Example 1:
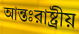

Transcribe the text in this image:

আন্তঃরাষ্ট্রীয়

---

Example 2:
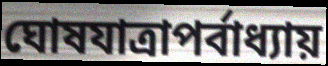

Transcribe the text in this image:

ঘোষযাত্রাপর্বাধ্যায়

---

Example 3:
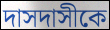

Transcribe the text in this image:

দাসদাসীকে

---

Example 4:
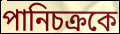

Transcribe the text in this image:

পানিচক্রকে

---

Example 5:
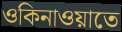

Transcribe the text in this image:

ওকিনাওয়াতে